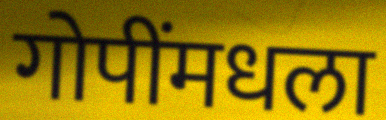
गोपींमधला